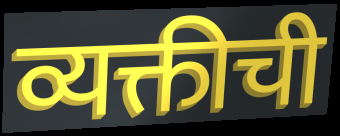
व्यक्तीची